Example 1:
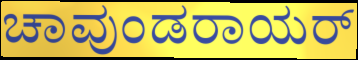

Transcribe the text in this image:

ಚಾವುಂಡರಾಯರ್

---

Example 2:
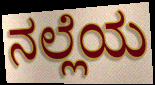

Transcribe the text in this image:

ನಲ್ಲೆಯ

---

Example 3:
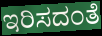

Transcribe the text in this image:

ಇರಿಸದಂತೆ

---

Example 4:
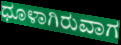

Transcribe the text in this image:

ಧೂಳಾಗಿರುವಾಗ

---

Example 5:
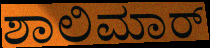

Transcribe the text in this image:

ಶಾಲಿಮಾರ್